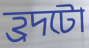
হ্ৰদটো